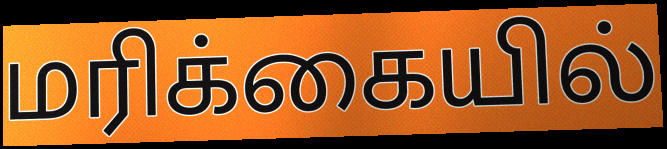
மரிக்கையில்